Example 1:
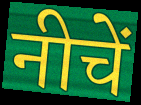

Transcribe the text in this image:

नीचें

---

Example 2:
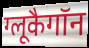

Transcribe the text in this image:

ग्लूकैगॉन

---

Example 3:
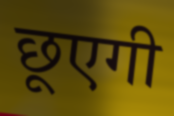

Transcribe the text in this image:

छूएगी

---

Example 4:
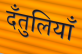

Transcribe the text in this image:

दँतुलियाँ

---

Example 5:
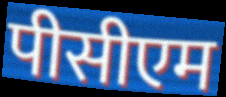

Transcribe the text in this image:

पीसीएम